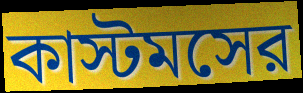
কাস্টমসের